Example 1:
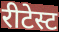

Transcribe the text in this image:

रीटेस्ट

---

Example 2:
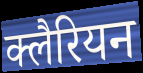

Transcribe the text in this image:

क्लैरियन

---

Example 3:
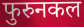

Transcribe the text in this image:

फुरुनकल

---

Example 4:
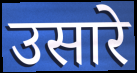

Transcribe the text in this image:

उसारे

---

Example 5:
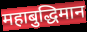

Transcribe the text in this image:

महाबुद्धिमान